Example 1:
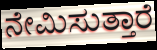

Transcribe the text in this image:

ನೇಮಿಸುತ್ತಾರೆ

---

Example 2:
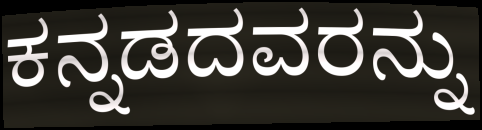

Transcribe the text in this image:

ಕನ್ನಡದವರನ್ನು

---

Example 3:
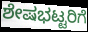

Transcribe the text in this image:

ಶೇಷಭಟ್ಟರಿಗೆ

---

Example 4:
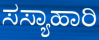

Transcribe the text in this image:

ಸಸ್ಯಾಹಾರಿ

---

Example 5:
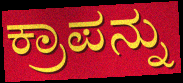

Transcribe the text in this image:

ಕ್ರಾಪನ್ನು